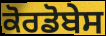
ਕੋਰਡੋਬੇਸ